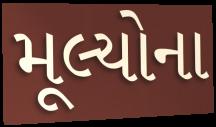
મૂલ્‍યોના